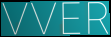
VVER